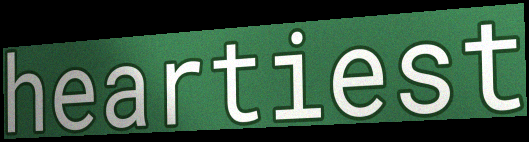
heartiest